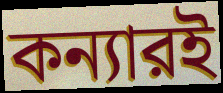
কন্যারই